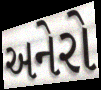
અનેરો